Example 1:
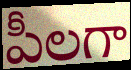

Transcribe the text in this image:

పీలగా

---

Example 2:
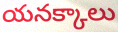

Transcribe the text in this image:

యనక్కాలు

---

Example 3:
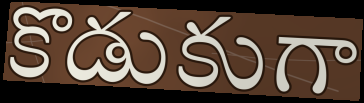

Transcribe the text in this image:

కొడుకుగా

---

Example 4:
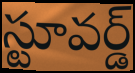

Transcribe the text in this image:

స్టూవర్డ్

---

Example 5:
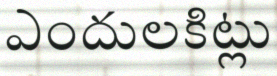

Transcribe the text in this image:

ఎందులకిట్లు